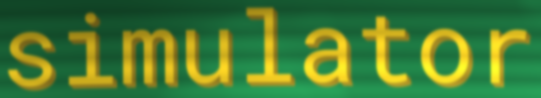
simulator